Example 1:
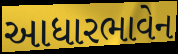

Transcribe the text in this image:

આધારભાવેન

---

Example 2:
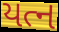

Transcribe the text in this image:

યત્ન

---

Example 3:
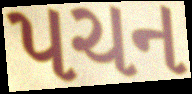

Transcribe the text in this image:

પચન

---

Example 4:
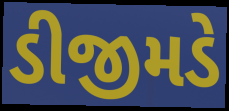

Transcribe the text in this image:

ડીજીમડે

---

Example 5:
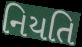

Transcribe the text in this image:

નિયતિ